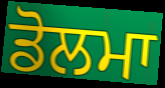
ਡੋਲਮਾ